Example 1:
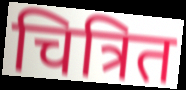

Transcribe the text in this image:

चित्रित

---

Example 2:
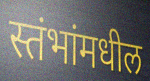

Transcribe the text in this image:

स्तंभांमधील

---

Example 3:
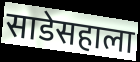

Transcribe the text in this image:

साडेसहाला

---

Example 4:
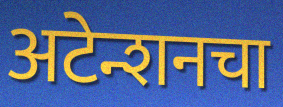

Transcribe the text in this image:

अटेन्शनचा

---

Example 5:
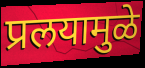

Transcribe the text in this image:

प्रलयामुळे